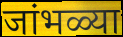
जांभळ्या